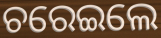
ଚରେଇଲେ